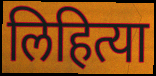
लिहित्या